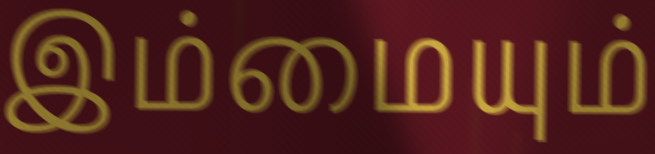
இம்மையும்